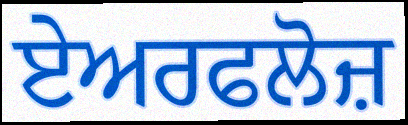
ਏਅਰਫਲੋਜ਼